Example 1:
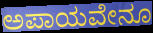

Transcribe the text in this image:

ಅಪಾಯವೇನೂ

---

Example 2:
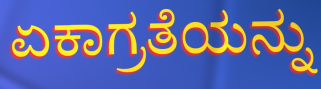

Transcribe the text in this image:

ಏಕಾಗ್ರತೆಯನ್ನು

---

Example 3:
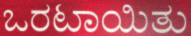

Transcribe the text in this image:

ಒರಟಾಯಿತು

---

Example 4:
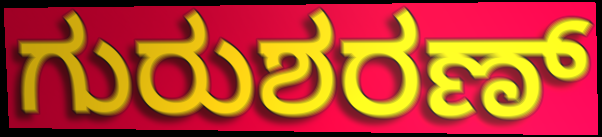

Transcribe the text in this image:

ಗುರುಶರಣ್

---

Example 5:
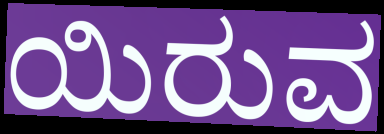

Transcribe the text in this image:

ಯಿರುವ